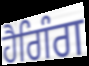
ਹੈਗਿੰਗ